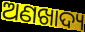
ଅଣଖାଦ୍ୟ